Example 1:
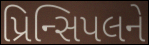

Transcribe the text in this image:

પ્રિન્સિપલને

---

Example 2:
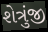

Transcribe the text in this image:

શેત્રુંજી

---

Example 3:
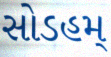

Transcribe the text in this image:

સોડહમ્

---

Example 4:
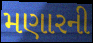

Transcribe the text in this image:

મણારની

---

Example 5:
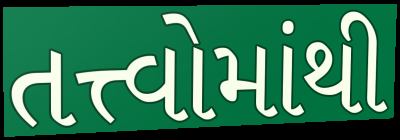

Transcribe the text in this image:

તત્ત્વોમાંથી